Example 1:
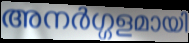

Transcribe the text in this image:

അനർഗ്ഗളമായി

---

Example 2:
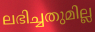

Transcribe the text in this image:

ലഭിച്ചതുമില്ല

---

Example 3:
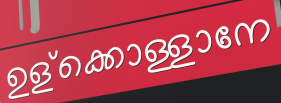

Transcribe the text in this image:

ഉള്ക്കൊള്ളാനേ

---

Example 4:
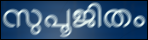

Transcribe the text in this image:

സുപൂജിതം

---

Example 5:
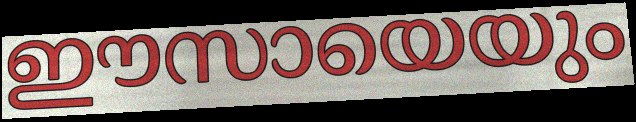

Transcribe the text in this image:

ഈസായെയും